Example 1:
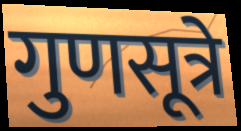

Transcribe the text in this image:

गुणसूत्रे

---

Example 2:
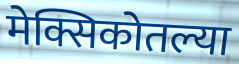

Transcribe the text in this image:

मेक्सिकोतल्या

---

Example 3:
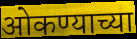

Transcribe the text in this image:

ओकण्याच्या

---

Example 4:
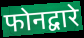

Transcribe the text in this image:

फोनद्वारे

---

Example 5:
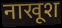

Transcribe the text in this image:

नाखूश